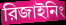
রিজাইনিং